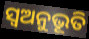
ସ୍ୱଅନୁଭୂତି